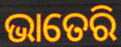
ଭାତେରି